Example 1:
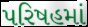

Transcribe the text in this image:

પરિષહમાં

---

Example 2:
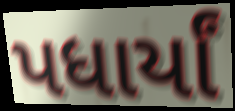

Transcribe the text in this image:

પધાર્યાં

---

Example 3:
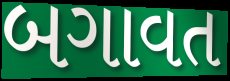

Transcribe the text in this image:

બગાવત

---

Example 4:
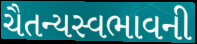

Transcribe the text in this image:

ચૈતન્યસ્વભાવની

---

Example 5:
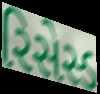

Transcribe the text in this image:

રિસેસ્ડ